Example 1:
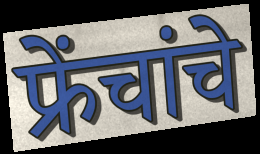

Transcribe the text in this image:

फ्रेंचांचे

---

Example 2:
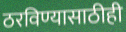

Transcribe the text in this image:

ठरविण्यासाठीही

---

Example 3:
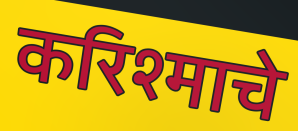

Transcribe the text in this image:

करिश्माचे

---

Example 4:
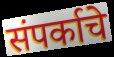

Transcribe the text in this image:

संपर्काचे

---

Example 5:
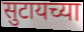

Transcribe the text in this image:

सुटायच्या